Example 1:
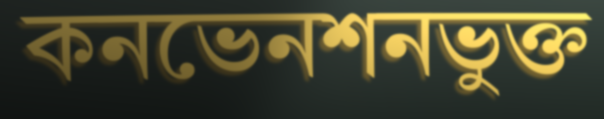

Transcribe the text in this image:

কনভেনশনভুক্ত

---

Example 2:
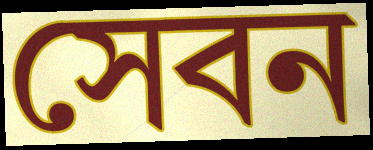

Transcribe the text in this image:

সেবন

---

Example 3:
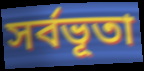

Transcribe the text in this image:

সর্বভূতা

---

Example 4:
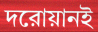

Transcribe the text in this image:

দরোয়ানই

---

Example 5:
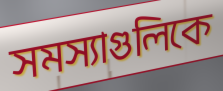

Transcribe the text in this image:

সমস্যাগুলিকে